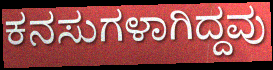
ಕನಸುಗಳಾಗಿದ್ದವು